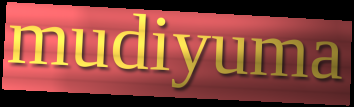
mudiyuma